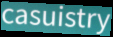
casuistry